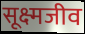
सूक्ष्मजीव